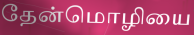
தேன்மொழியை